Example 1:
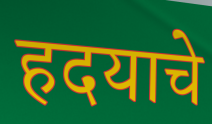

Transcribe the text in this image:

हदयाचे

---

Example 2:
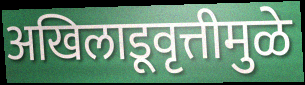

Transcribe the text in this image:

अखिलाडूवृत्तीमुळे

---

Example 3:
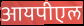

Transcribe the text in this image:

आयपीएल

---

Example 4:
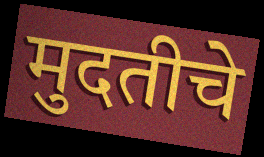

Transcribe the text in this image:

मुदतीचे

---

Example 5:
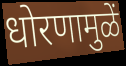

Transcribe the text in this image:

धोरणामुळें